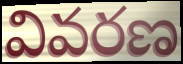
వివరణ